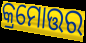
କ୍ରମୋତ୍ତର